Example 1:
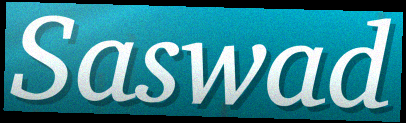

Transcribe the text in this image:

Saswad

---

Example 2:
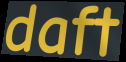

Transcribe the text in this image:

daft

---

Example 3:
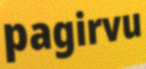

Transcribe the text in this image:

pagirvu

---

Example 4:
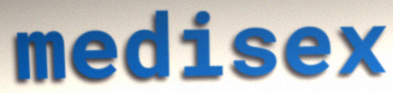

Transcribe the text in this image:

medisex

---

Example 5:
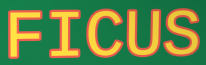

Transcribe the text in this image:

FICUS